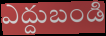
ఎద్దుబండి